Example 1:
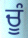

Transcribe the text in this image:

ਚੂੰ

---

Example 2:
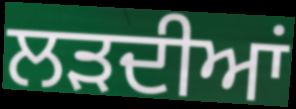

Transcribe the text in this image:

ਲੜਦੀਆਂ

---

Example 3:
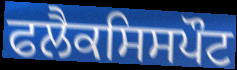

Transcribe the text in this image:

ਫਲੈਕਸਿਸਪੌਟ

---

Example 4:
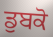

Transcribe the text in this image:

ਡੁਬਕੋ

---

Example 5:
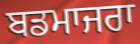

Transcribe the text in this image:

ਬਡਮਾਜਰਾ